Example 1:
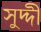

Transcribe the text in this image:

সুদ্দী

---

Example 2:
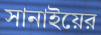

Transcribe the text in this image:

সানাইয়ের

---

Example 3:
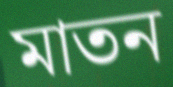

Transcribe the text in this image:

মাতন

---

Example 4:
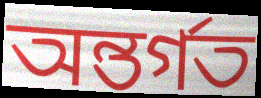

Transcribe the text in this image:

অন্তর্গত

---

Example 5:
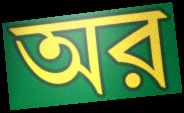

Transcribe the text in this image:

অর